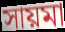
সায়মা